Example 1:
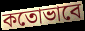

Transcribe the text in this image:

কতোভাবে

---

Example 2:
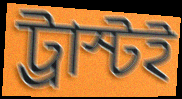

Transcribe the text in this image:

ট্রাস্টই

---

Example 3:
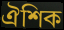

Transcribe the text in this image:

ঐশিক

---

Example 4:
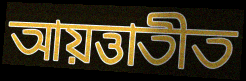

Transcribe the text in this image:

আয়ত্তাতীত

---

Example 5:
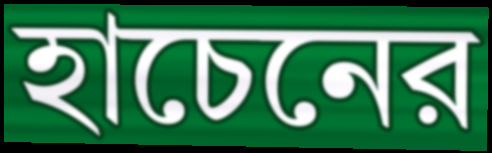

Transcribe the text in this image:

হাচেনের